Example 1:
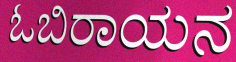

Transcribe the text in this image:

ಓಬಿರಾಯನ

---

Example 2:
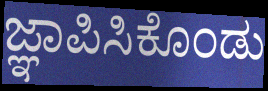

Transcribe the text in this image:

ಜ್ಞಾಪಿಸಿಕೊಂಡು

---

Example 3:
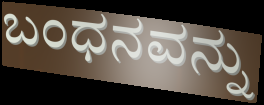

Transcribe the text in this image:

ಬಂಧನವನ್ನು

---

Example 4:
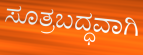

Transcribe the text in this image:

ಸೂತ್ರಬದ್ಧವಾಗಿ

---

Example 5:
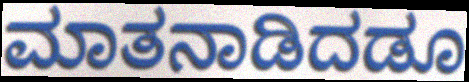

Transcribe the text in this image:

ಮಾತನಾಡಿದಡೂ